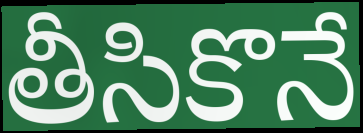
తీసికొనే